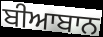
ਬੀਆਬਾਨ